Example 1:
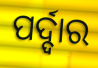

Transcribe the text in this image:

ପର୍ଦ୍ଦାର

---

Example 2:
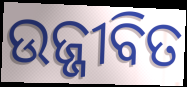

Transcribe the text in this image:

ଉଜ୍ଜୀବିତ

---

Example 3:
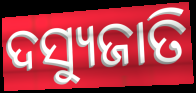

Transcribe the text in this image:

ଦସ୍ୟୁଜାତି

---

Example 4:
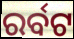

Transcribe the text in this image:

ରର୍ବଟ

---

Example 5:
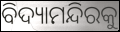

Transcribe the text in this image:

ବିଦ୍ୟାମନ୍ଦିରକୁ